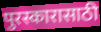
पुरस्कारासाठी